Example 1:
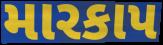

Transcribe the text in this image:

મારકાપ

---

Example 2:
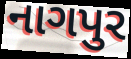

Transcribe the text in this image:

નાગપુર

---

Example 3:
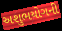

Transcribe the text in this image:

અશુભયોગની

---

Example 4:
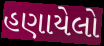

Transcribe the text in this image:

હણાયેલો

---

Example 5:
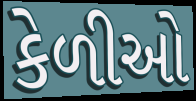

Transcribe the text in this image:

કેળીઓ